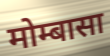
मोम्बासा